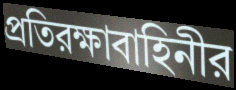
প্রতিরক্ষাবাহিনীর